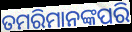
ତମରିମାନଙ୍କପରି